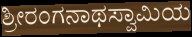
ಶ್ರೀರಂಗನಾಥಸ್ವಾಮಿಯ